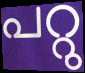
പറ്റു